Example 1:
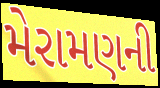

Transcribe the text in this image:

મેરામણની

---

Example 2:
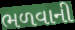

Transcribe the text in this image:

ભળવાની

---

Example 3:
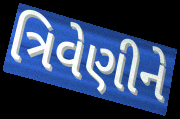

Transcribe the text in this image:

ત્રિવેણીને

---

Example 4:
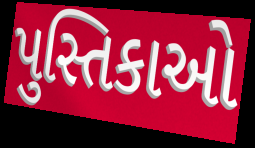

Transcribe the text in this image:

પુસ્તિકાઓ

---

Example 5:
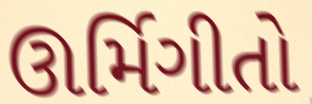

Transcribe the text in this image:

ઊર્મિગીતો